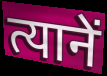
त्यानें